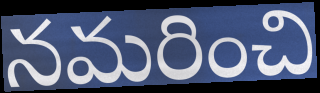
నమరించి